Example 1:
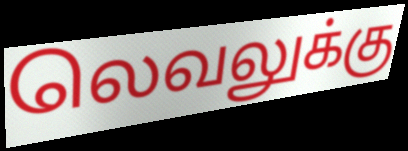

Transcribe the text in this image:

லெவலுக்கு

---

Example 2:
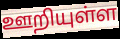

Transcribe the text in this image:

ஊறியுள்ள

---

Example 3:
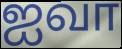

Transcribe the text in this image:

ஐவா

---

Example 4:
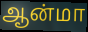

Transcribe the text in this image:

ஆன்மா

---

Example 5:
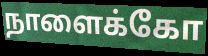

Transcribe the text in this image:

நாளைக்கோ